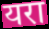
यरा